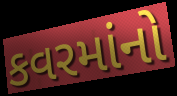
કવરમાંનો